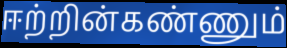
ஈற்றின்கண்ணும்